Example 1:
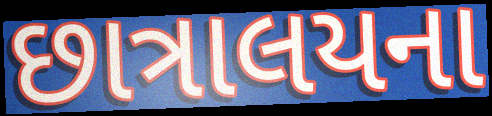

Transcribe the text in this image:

છાત્રાલયના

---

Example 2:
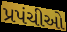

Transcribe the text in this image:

પ્રપંચીઓ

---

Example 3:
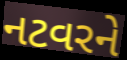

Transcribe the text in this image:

નટવરને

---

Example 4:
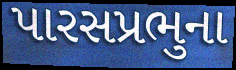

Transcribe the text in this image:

પારસપ્રભુના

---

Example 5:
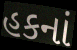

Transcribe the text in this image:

હકનાં